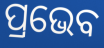
ପ୍ରଭେବ